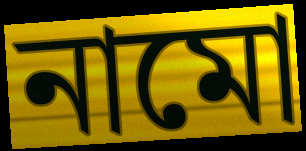
নামো